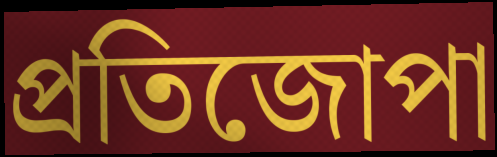
প্ৰতিজোপা